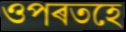
ওপৰতহে